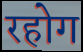
रहोग